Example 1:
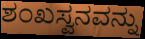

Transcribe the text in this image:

ಶಂಖಸ್ವನವನ್ನು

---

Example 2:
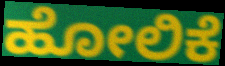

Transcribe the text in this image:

ಹೋಲಿಕೆ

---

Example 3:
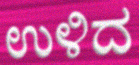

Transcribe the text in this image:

ಉಳಿದ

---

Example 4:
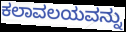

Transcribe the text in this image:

ಕಲಾವಲಯವನ್ನು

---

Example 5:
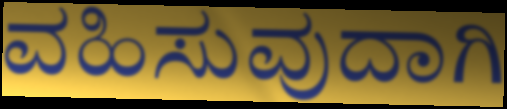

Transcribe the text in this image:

ವಹಿಸುವುದಾಗಿ